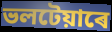
ভলটেয়াৰে